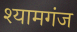
श्यामगंज